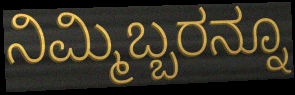
ನಿಮ್ಮಿಬ್ಬರನ್ನೂ